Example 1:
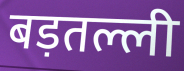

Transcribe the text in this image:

बड़तल्ली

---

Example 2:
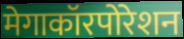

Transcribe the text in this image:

मेगाकॉरपोरेशन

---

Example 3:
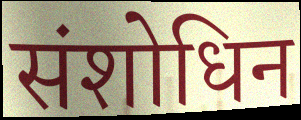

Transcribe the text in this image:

संशोधिन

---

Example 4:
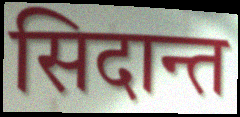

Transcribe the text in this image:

सिदान्त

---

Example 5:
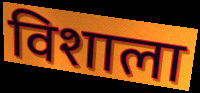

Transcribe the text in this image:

विशाला